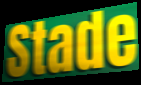
Stade